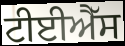
ਟੀਈਐੱਸ